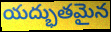
యద్భుతమైన